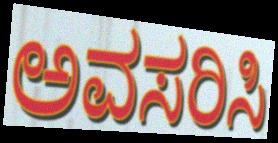
ಅವಸರಿಸಿ